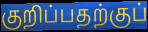
குறிப்பதற்குப்